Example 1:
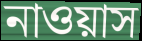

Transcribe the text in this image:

নাওয়াস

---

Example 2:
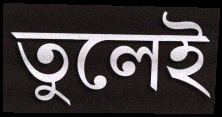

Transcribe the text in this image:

তুলেই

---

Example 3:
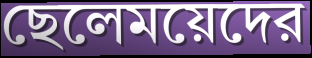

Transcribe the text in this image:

ছেলেময়েদের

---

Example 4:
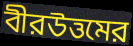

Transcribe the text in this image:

বীরউত্তমের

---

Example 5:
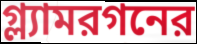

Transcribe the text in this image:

গ্ল্যামরগনের